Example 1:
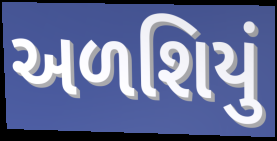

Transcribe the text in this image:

અળશિયું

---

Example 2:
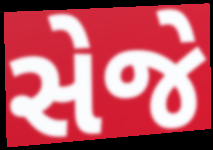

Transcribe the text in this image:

સેજે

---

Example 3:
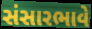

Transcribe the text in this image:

સંસારભાવે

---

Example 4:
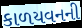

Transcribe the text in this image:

કાળયવનની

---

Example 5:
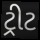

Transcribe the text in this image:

ટ્રીટ